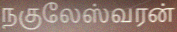
நகுலேஸ்வரன்